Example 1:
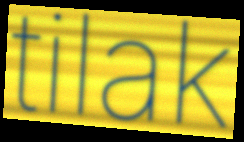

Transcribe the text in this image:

tilak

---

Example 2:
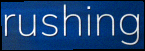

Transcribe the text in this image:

rushing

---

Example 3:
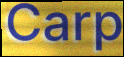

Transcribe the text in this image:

Carp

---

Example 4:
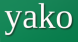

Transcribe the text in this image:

yako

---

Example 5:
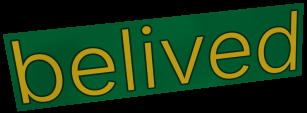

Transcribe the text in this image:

belived